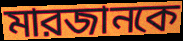
মারজানকে